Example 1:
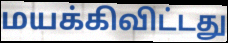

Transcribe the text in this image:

மயக்கிவிட்டது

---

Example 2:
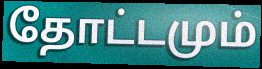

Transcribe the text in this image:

தோட்டமும்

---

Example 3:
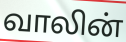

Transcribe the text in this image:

வாலின்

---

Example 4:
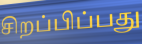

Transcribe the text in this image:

சிறப்பிப்பது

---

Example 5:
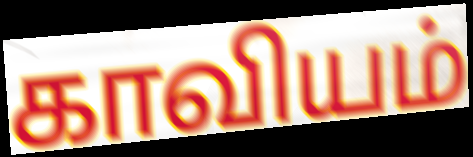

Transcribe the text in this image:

காவியம்